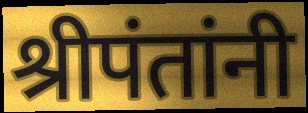
श्रीपंतांनी